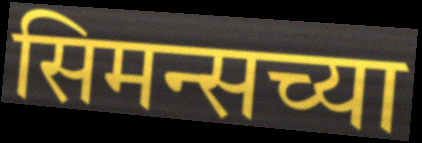
सिमन्सच्या